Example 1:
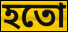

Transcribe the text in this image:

হতো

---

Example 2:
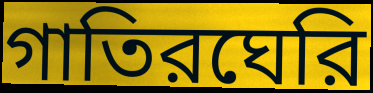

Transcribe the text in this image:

গাতিরঘেরি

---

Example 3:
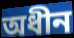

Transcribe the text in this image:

অধীন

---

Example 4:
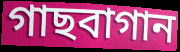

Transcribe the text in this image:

গাছবাগান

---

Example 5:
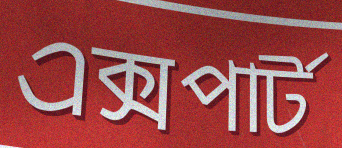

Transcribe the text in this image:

এক্সপার্ট